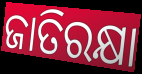
ଜାତିରକ୍ଷା